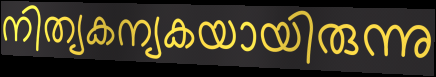
നിത്യകന്യകയായിരുന്നു